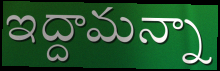
ఇద్దామన్నా